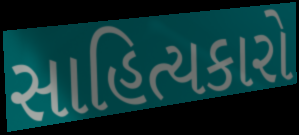
સાહિત્યકારો